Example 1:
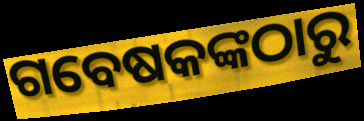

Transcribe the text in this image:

ଗବେଷକଙ୍କଠାରୁ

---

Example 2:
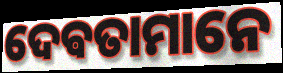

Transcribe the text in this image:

ଦେଵତାମାନେ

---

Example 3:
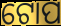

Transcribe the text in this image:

ଟୋପ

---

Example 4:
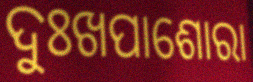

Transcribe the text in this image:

ଦୁଃଖପାଶୋରା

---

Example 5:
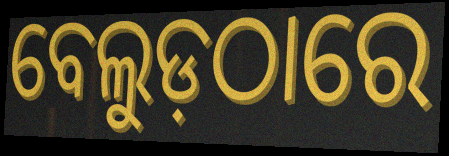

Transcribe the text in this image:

ବେଲୁଡ଼ଠାରେ